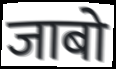
जाबो